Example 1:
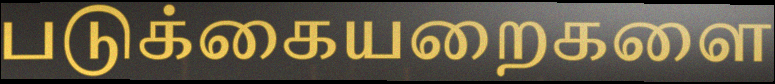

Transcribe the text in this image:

படுக்கையறைகளை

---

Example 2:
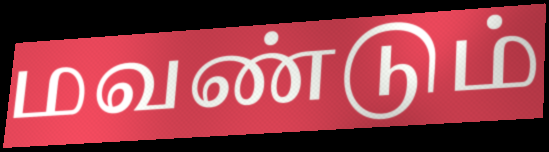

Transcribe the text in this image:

மவண்டும்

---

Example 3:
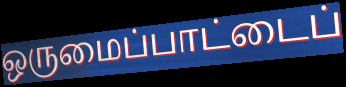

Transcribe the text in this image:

ஒருமைப்பாட்டைப்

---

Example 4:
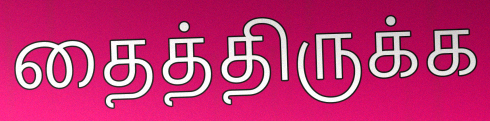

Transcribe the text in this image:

தைத்திருக்க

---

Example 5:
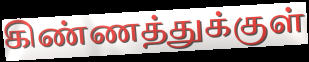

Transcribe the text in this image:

கிண்ணத்துக்குள்